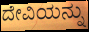
ದೇವಿಯನ್ನು